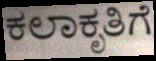
ಕಲಾಕೃತಿಗೆ